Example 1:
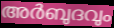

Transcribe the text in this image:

അർബുദവും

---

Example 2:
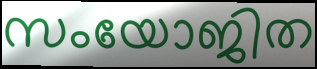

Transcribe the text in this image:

സംയോജിത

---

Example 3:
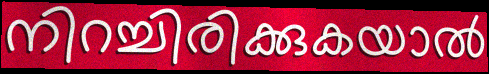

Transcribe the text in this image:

നിറച്ചിരിക്കുകയാൽ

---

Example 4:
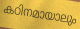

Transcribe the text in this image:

കഠിനമായാലും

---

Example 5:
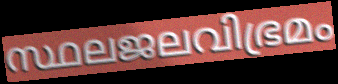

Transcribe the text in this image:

സ്ഥലജലവിഭ്രമം